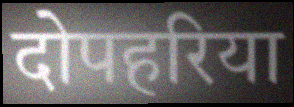
दोपहरिया